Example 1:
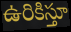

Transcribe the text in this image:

ఉరికిస్తూ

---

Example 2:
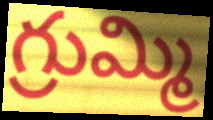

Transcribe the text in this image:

గ్రుమ్మి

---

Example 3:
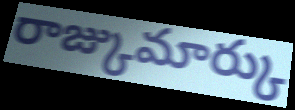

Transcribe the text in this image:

రాజ్కుమార్కు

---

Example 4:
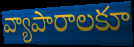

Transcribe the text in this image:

వ్యాపారాలకూ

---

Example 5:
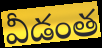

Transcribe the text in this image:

వీడంత